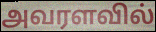
அவரளவில்